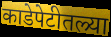
काडेपेटीतल्या